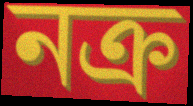
নক্র